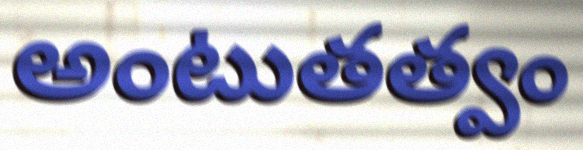
అంటుతత్వం